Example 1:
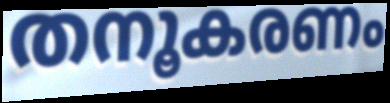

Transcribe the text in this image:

തനൂകരണം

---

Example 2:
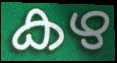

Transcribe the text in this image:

കഴ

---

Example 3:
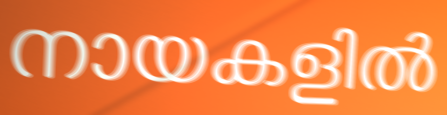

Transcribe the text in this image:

നായകളിൽ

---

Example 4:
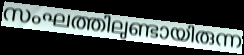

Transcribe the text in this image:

സംഘത്തിലുണ്ടായിരുന്ന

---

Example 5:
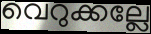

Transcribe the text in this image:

വെറുക്കല്ലേ